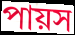
পায়স